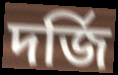
দর্জি